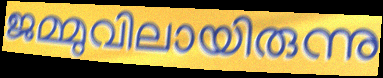
ജമ്മുവിലായിരുന്നു